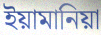
ইয়ামানিয়া